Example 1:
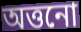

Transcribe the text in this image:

অত্তনো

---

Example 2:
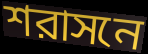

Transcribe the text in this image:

শরাসনে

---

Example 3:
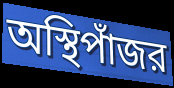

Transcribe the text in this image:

অস্থিপাঁজর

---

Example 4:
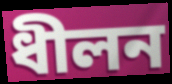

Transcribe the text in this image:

ধীলন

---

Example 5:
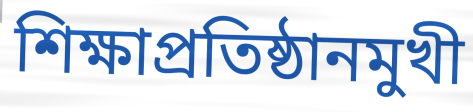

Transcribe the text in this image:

শিক্ষাপ্রতিষ্ঠানমুখী